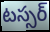
టస్సర్